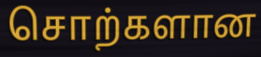
சொற்களான